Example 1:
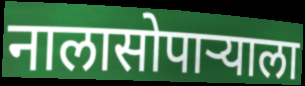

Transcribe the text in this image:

नालासोपाऱ्याला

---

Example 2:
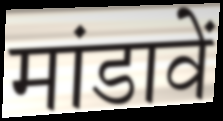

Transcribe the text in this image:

मांडावें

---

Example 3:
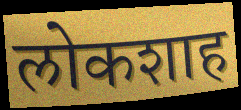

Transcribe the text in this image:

लोकशाह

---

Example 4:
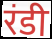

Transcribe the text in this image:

रंडी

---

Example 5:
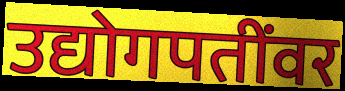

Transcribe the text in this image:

उद्योगपतींवर